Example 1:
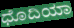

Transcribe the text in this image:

ಧೊದಿಯಾ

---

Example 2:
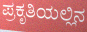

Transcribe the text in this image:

ಪ್ರಕೃತಿಯಲ್ಲಿನ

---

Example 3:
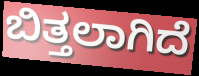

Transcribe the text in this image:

ಬಿತ್ತಲಾಗಿದೆ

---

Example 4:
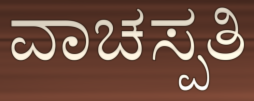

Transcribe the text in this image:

ವಾಚಸ್ಪತಿ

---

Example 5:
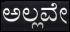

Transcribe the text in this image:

ಅಲ್ಲವೇ